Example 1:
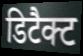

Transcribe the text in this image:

डिटैक्ट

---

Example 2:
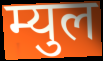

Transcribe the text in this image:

म्युल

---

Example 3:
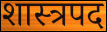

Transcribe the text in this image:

शास्त्रपद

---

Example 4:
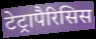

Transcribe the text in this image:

टेट्रापैरिसिस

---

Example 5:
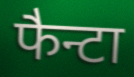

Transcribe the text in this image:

फैन्टा